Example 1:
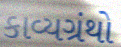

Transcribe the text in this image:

કાવ્યગ્રંથો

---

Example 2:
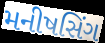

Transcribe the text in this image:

મનીષસિંગ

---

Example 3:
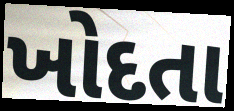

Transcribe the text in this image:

ખોદતા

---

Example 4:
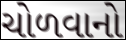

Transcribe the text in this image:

ચોળવાનો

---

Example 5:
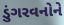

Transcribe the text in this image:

ડુંગરવનોને